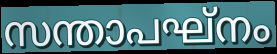
സന്താപഘ്നം